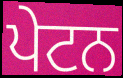
ਪੇਟਨ